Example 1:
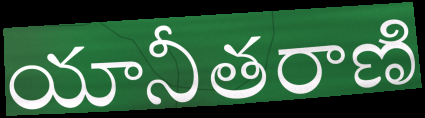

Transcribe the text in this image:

యానీతరాణి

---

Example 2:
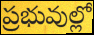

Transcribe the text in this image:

ప్రభువుల్లో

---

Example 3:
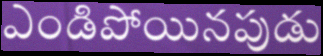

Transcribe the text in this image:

ఎండిపోయినపుడు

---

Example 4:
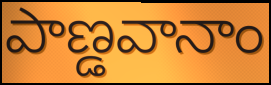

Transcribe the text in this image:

పాణ్డవానాం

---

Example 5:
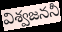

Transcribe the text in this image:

విశ్వజననీ